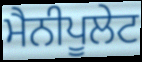
ਮੈਨੀਪੂਲੇਟ